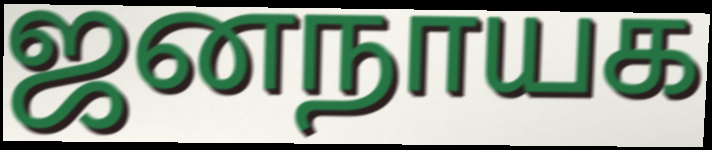
ஜனநாயக